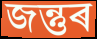
জন্তুৰ